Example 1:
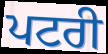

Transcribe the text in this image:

ਪਟਰੀ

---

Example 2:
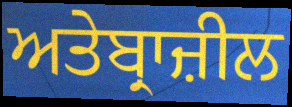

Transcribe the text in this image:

ਅਤੇਬ੍ਰਾਜ਼ੀਲ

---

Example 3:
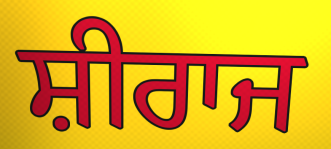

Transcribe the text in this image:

ਸ਼ੀਰਾਜ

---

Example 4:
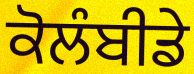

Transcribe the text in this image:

ਕੋਲੰਬੀਡੇ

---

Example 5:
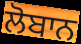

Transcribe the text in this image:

ਲੋਬਾਨ